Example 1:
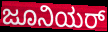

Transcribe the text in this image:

ಜೂನಿಯರ್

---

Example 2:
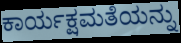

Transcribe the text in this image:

ಕಾರ್ಯಕ್ಷಮತೆಯನ್ನು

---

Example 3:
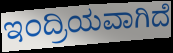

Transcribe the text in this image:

ಇಂದ್ರಿಯವಾಗಿದೆ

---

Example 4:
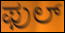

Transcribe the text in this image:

ಫುಲ್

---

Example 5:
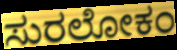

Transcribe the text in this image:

ಸುರಲೋಕಂ